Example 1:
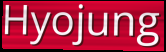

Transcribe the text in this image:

Hyojung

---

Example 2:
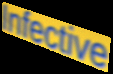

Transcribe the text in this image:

Infective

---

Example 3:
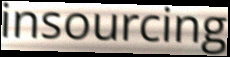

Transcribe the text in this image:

insourcing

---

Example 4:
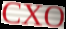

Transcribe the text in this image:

CXO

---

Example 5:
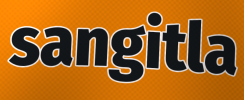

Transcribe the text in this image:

sangitla